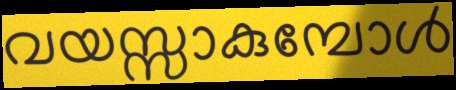
വയസ്സാകുമ്പോൾ